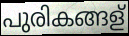
പുരികങ്ങള്